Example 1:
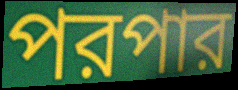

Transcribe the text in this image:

পরপার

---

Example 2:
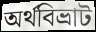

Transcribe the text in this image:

অর্থবিভ্রাট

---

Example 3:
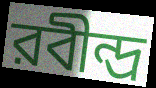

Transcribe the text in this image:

রবীন্দ্র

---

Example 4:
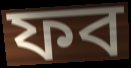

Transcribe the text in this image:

ফব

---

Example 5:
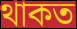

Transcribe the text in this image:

থাকত